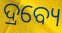
ଦ୍ରବ୍ୟେ